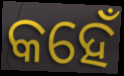
କହେଁ